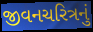
જીવનચરિત્રનું